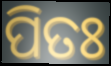
ପିତଃ